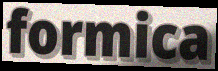
formica